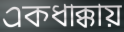
একধাক্কায়